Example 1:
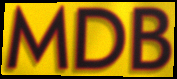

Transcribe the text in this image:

MDB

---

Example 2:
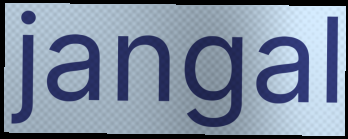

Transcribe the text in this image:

jangal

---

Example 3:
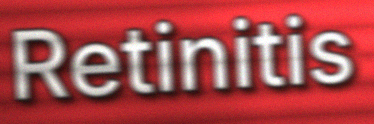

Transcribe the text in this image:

Retinitis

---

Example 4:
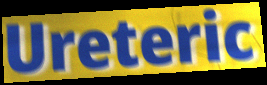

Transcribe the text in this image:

Ureteric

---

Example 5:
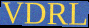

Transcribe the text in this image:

VDRL